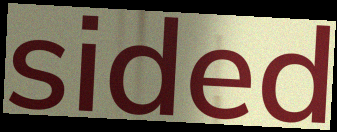
sided